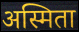
अस्मिता